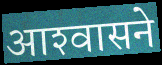
आश्वासने